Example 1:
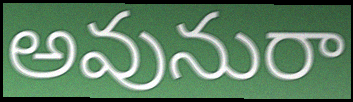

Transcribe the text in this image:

అవునురా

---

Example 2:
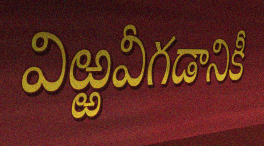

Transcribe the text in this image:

విఱ్ఱవీగడానికీ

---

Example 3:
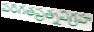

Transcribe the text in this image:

పరిగతప్రత్నవిగ్రహ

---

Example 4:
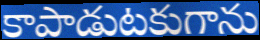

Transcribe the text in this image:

కాపాడుటకుగాను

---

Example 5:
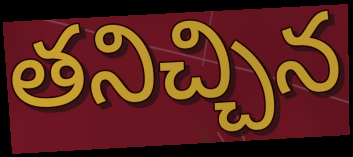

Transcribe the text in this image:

తనిచ్చిన